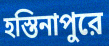
হস্তিনাপুরে